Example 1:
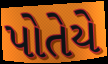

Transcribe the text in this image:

પોતેયે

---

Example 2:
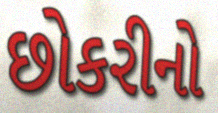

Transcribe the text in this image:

છોકરીનો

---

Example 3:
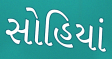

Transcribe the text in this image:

સોહિયાં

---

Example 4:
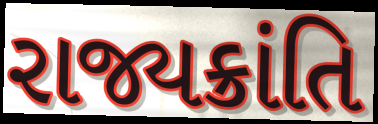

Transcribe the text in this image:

રાજ્યક્રાંતિ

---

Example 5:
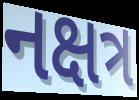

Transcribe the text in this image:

નક્ષત્ર